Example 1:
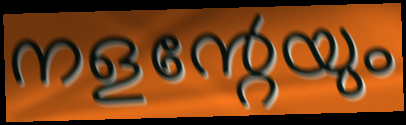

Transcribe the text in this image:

നളന്റേയും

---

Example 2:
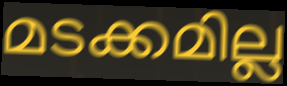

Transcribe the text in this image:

മടക്കമില്ല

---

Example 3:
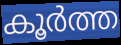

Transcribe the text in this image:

കൂർത്ത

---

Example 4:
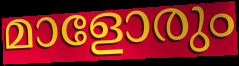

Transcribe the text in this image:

മാളോരും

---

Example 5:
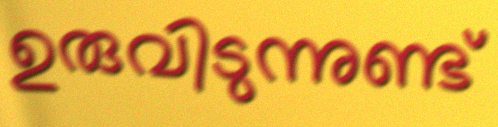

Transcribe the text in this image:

ഉരുവിടുന്നുണ്ട്